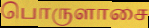
பொருளாசை